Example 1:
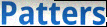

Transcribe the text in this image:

Patters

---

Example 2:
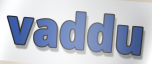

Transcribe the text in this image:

vaddu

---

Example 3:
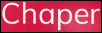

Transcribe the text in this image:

Chaper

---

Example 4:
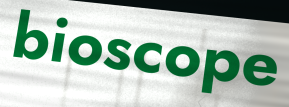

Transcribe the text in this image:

bioscope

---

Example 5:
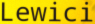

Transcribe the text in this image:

Lewici